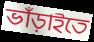
ভাঁড়াইতে